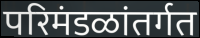
परिमंडळांतर्गत